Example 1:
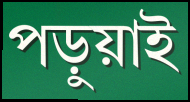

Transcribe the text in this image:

পড়ুয়াই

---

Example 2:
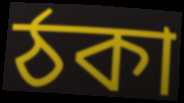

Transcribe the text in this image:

ঠকা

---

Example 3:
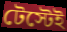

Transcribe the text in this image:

টেস্টেই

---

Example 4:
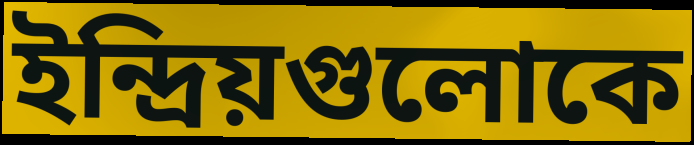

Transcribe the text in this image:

ইন্দ্রিয়গুলোকে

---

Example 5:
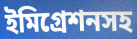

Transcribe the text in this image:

ইমিগ্রেশনসহ